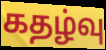
கதழ்வு